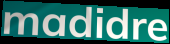
madidre